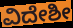
ವಿದೇಶೀ